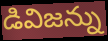
డివిజన్ను